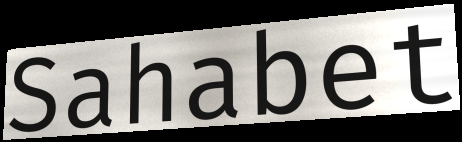
Sahabet